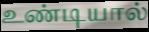
உண்டியால்